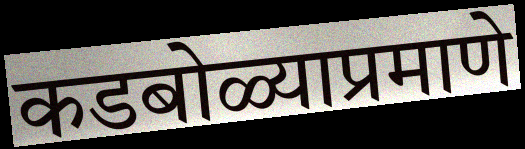
कडबोळ्याप्रमाणे